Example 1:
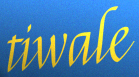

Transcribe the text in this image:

tiwale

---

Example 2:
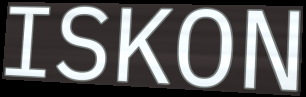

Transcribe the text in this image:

ISKON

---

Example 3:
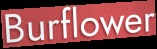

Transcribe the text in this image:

Burflower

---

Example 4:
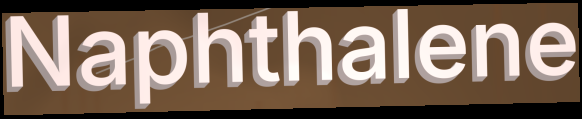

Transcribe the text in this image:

Naphthalene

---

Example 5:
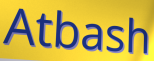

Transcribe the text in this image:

Atbash